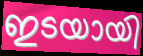
ഇടയായി